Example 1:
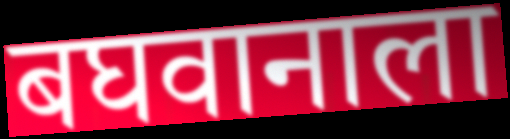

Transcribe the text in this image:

बघवानाला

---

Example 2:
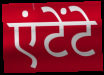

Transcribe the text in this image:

एंटेंटे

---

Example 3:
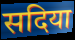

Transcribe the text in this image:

सदिया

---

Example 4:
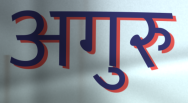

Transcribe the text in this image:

अगुरु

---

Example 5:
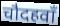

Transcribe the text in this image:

चौदहवाँ